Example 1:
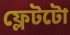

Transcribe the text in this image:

ফ্লেটটো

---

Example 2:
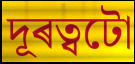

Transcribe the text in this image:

দূৰত্বটো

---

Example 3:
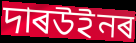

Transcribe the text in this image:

দাৰউইনৰ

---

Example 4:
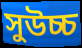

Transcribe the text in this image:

সুউচ্চ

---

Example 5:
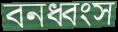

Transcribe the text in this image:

বনধ্বংস